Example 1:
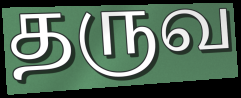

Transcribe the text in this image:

தருவ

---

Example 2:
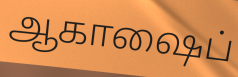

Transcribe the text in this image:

ஆகாஷைப்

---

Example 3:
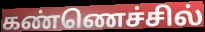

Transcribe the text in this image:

கண்ணெச்சில்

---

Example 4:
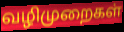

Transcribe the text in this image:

வழிமுறைகள்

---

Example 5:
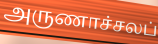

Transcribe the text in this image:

அருணாச்சலப்